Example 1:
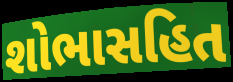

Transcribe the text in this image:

શોભાસહિત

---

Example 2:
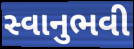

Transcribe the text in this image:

સ્વાનુભવી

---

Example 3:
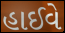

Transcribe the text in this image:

હાઈવે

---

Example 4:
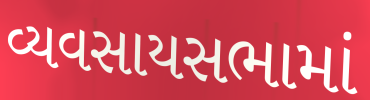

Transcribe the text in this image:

વ્યવસાયસભામાં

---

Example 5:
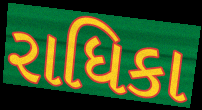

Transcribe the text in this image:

રાધિકા